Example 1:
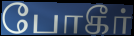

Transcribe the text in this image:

போகீர்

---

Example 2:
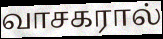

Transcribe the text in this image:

வாசகரால்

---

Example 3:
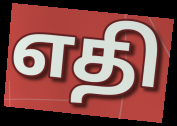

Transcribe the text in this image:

எதி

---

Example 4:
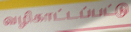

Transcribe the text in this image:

வழிகாட்டப்பட்டு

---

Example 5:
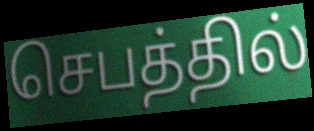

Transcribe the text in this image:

செபத்தில்